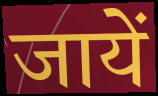
जायें